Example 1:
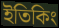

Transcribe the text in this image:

ইতিকিং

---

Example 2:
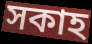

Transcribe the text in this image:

সকাহ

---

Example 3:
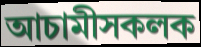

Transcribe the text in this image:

আচামীসকলক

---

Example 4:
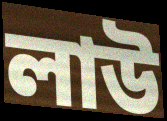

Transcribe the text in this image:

লাউ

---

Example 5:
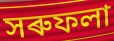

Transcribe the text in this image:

সৰুফলা